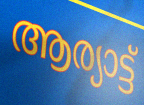
ആര്യാട്ട്